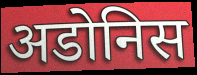
अडोनिस